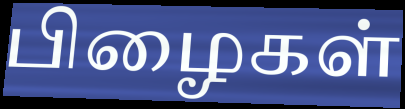
பிழைகள்